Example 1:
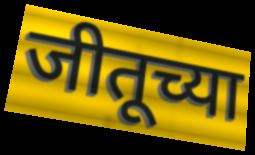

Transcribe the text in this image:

जीतूच्या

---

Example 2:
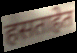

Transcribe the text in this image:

हसताहेत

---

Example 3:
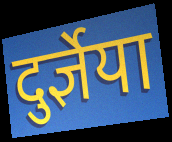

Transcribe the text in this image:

दुर्ज्ञेया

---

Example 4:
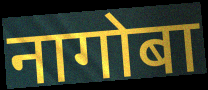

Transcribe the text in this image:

नागोबा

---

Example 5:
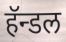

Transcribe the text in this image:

हॅन्डल